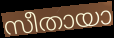
സീതായാ